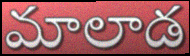
మాలాడ